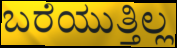
ಬರೆಯುತ್ತಿಲ್ಲ